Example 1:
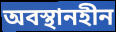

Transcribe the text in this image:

অবস্থানহীন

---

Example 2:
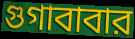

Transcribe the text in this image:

গুগাবাবার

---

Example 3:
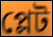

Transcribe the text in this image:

প্লেট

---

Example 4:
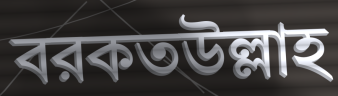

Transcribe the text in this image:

বরকতউল্লাহ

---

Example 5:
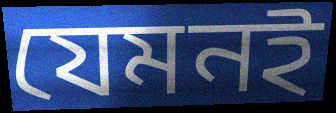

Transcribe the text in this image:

যেমনই